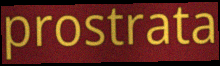
prostrata